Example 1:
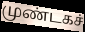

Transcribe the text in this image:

முண்டகச்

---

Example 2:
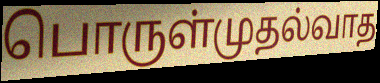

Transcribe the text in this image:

பொருள்முதல்வாத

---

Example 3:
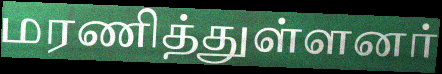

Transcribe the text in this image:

மரணித்துள்ளனர்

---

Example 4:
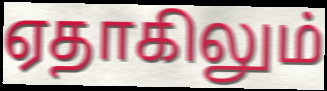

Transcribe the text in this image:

ஏதாகிலும்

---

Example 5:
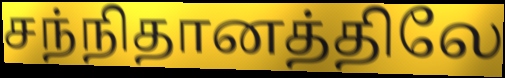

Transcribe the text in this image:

சந்நிதானத்திலே